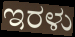
ಇರಳು